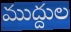
ముద్దుల